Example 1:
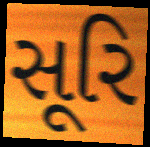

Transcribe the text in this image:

સૂરિ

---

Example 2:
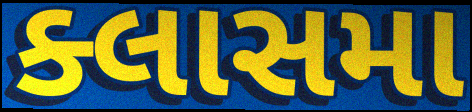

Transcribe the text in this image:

ક્લાસમા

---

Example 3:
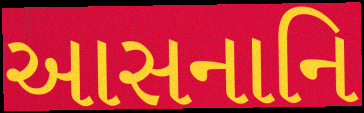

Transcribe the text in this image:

આસનાનિ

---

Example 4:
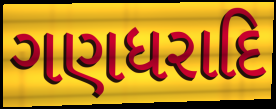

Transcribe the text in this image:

ગણધરાદિ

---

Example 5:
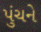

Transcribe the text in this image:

પુંચને